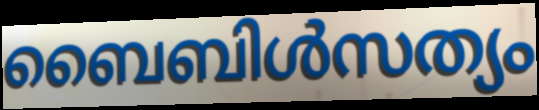
ബൈബിൾസത്യം